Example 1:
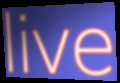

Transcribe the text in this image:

live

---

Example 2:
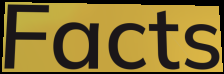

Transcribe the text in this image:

Facts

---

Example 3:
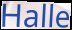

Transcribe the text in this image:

Halle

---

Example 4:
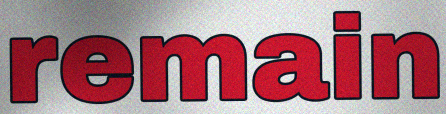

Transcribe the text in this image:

remain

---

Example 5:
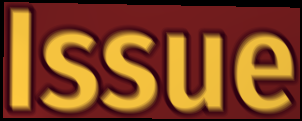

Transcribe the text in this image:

Issue